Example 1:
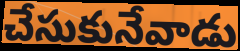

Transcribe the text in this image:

చేసుకునేవాడు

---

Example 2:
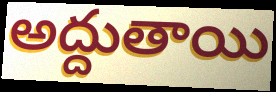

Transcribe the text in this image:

అద్దుతాయి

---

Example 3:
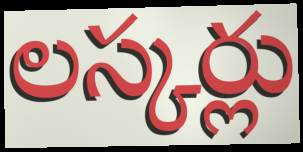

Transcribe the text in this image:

లస్కర్లు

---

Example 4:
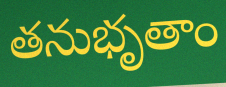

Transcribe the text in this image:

తనుభృతాం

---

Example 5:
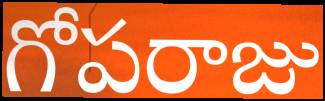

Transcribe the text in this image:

గోపరాజు